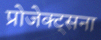
प्रोजेक्ट्सना